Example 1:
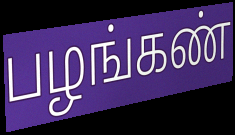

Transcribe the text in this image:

பழங்கண்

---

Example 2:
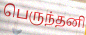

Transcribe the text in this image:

பெருந்தனி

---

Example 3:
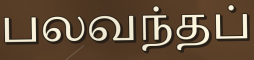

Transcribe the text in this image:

பலவந்தப்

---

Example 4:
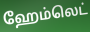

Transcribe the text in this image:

ஹேம்லெட்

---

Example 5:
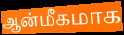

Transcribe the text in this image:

ஆன்மீகமாக